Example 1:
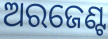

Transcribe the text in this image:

ଅରଜେଣ୍ଟ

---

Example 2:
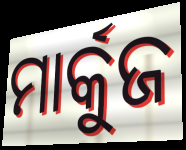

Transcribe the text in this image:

ମାର୍କୁଜ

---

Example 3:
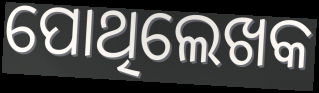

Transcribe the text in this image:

ପୋଥିଲେଖକ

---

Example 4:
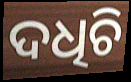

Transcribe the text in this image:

ଦଧିଚି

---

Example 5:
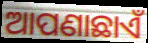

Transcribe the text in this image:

ଆପଣାଛାଏଁ